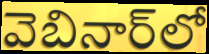
వెబినార్‌లో